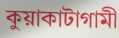
কুয়াকাটাগামী